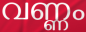
വണ്ണം